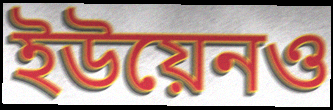
ইউয়েনও